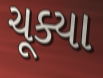
ચૂક્યા